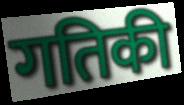
गतिकी